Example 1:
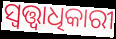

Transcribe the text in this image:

ସ୍ବତ୍ତ୍ବାଧିକାରୀ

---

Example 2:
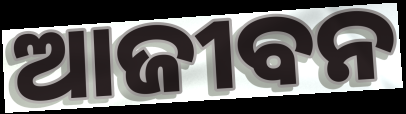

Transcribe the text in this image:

ଆଜୀବନ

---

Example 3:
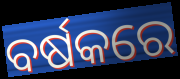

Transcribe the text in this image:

ବର୍ଷକରେ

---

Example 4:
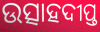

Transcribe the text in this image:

ଉତ୍ସାହଦୀପ୍ତ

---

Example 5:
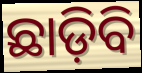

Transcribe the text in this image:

ଛାଡ଼ିବି